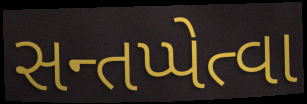
સન્તપ્પેત્વા